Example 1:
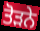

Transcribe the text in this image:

ਤੋੜਨੇ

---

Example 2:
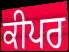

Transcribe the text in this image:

ਕੀਪਰ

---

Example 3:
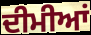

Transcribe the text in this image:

ਦੀਮੀਆਂ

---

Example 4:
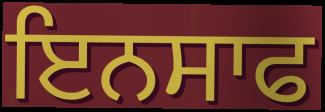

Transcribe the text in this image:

ਇਨਸਾਫ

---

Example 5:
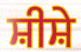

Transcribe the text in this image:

ਸ਼ੀਸ਼ੇ